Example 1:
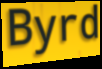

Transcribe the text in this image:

Byrd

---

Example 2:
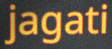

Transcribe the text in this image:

jagati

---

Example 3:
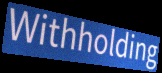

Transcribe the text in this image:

Withholding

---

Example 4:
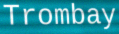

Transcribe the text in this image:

Trombay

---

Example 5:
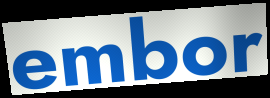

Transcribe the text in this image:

embor